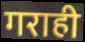
गराही